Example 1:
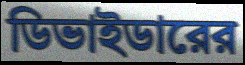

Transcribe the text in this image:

ডিভাইডারের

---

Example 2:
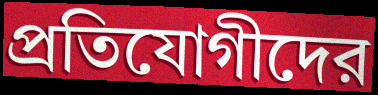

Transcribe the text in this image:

প্রতিযোগীদের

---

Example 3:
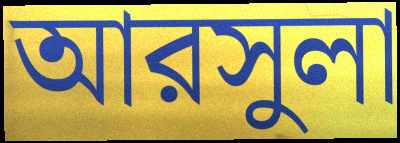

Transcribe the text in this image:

আরসুলা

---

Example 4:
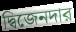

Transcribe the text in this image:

দ্বিজেনদার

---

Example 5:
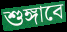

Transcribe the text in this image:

শুঙ্গাবে